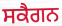
ਸਕੈਗਨ